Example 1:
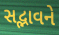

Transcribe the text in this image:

સદ્ભાવને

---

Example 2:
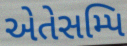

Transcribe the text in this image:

એતેસમ્પિ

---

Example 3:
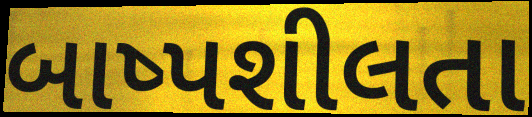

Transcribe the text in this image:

બાષ્પશીલતા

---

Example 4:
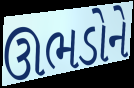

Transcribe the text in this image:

ઊભડોને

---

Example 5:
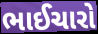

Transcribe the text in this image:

ભાઈચારો